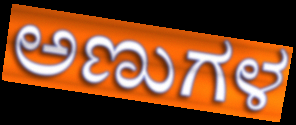
ಅಣುಗಳ